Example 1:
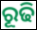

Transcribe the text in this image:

ରୂଢି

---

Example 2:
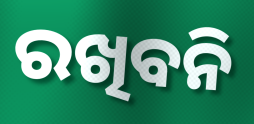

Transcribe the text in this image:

ରଖିବନି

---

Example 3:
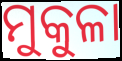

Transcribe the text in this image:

ମୁକୁଳା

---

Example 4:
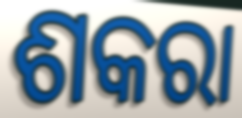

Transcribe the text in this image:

ଶକରା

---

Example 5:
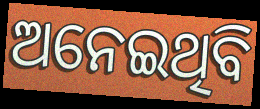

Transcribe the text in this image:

ଅନେଇଥିବି